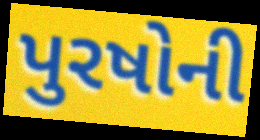
પુરષોની